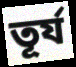
তূর্য